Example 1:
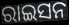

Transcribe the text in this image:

ରାଇସନ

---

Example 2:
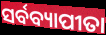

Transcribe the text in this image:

ସର୍ବବ୍ୟାପୀତା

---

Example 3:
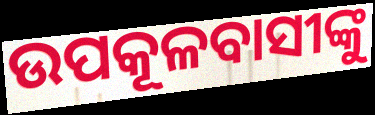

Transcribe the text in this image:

ଉପକୂଳବାସୀଙ୍କୁ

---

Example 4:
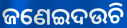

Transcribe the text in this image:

ଜଣେଇଦଉଚି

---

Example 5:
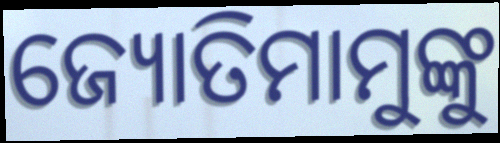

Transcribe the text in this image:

ଜ୍ୟୋତିମାମୁଙ୍କୁ